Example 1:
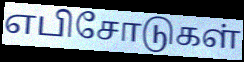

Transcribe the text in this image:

எபிசோடுகள்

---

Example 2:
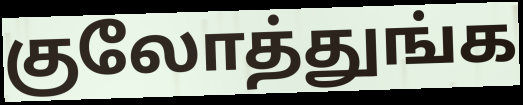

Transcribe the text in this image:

குலோத்துங்க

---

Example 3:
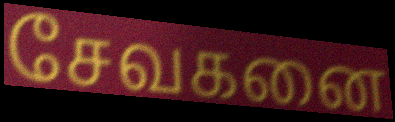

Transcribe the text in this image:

சேவகனை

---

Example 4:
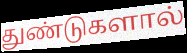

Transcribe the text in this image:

துண்டுகளால்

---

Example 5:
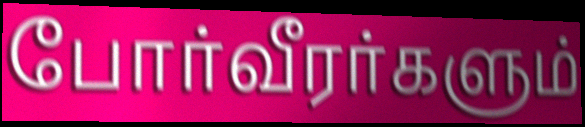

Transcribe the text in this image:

போர்வீரர்களும்